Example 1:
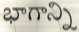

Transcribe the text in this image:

భాగాన్ని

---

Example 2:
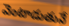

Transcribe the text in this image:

వెంటాడుతునే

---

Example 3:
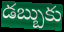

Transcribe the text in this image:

డబ్బుకు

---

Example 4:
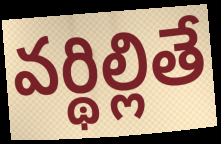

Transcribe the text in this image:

వర్థిల్లితే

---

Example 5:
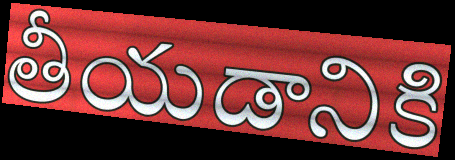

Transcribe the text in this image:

తీయడానికి